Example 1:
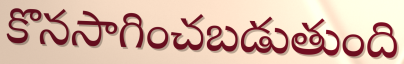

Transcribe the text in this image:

కొనసాగించబడుతుంది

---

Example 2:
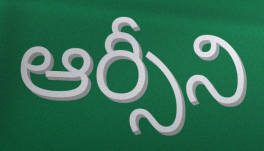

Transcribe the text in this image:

ఆర్సీని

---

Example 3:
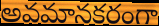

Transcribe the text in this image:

అవమానకరంగా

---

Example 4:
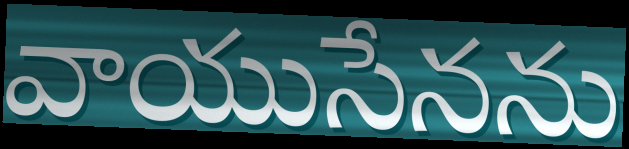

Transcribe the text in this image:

వాయుసేనను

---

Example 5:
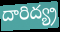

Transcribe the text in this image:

దారిద్య్ర